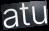
atu